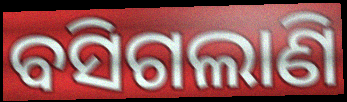
ବସିଗଲାଣି